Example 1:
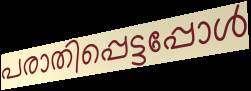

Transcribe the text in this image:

പരാതിപ്പെട്ടപ്പോൾ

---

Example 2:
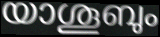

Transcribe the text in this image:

യാശൂബും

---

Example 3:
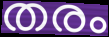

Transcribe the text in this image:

തരം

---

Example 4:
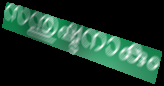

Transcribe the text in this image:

സന്തുഷ്ടനാകും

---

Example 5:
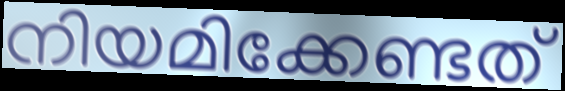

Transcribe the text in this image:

നിയമിക്കേണ്ടത്